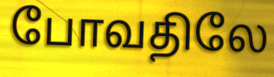
போவதிலே